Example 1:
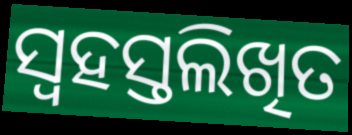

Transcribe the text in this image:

ସ୍ୱହସ୍ତଲିଖିତ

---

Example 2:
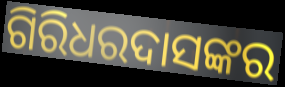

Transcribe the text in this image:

ଗିରିଧରଦାସଙ୍କର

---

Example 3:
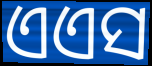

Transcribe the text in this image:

ଏଏସ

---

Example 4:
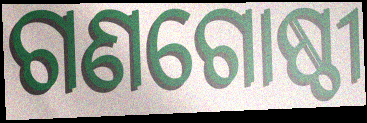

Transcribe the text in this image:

ଗଣଗୋଷ୍ଠୀ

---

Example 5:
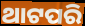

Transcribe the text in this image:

ଥାଟପରି